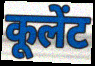
कूलेंट